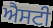
ਐਸਟੀ